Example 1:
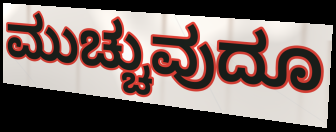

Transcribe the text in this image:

ಮುಚ್ಚುವುದೂ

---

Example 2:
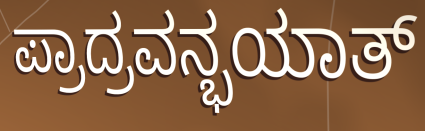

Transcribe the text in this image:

ಪ್ರಾದ್ರವನ್ಭಯಾತ್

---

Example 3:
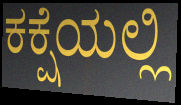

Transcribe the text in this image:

ಕಕ್ಷೆಯಲ್ಲಿ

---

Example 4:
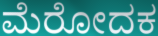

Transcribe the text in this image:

ಮೆರೋದಕ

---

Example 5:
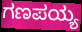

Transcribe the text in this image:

ಗಣಪಯ್ಯ